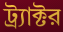
ট্র্যাক্টর